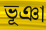
ভূঞা